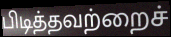
பிடித்தவற்றைச்